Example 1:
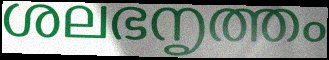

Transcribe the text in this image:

ശലഭനൃത്തം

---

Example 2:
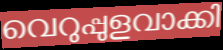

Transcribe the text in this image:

വെറുപ്പുളവാക്കി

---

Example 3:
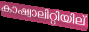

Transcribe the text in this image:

കാഷ്വാലിറ്റിയില്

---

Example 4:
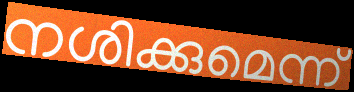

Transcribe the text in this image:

നശിക്കുമെന്ന്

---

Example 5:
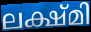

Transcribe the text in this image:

ലക്ഷ്മി